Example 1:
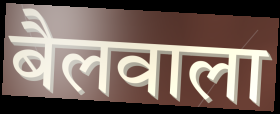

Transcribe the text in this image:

बैलवाला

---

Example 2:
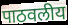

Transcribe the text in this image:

पाठवलीय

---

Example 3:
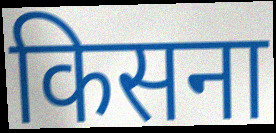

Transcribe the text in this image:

किसना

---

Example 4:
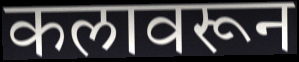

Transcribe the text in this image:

कलावरून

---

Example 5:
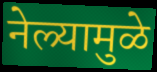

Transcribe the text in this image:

नेल्यामुळे